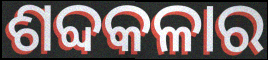
ଶବ୍ଦକଳାର